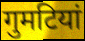
गुमटियां